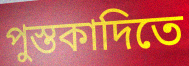
পুস্তকাদিতে